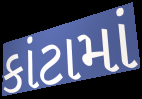
કાંટામાં